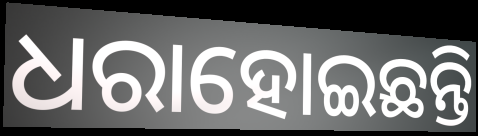
ଧରାହୋଇଛନ୍ତି